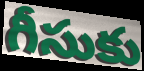
గీసుకు